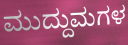
ಮುದ್ದುಮಗಳ